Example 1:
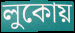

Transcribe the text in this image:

লুকোয়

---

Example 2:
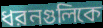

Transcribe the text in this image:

ধরনগুলিকে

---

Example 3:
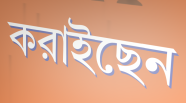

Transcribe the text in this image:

করাইছেন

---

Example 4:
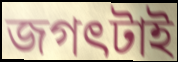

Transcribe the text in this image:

জগৎটাই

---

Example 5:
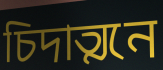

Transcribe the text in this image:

চিদাত্মনে